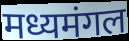
मध्यमंगल